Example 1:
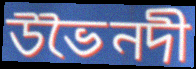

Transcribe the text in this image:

উভৈনদী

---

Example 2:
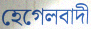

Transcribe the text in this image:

হেগেলবাদী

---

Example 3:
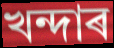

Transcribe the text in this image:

খন্দাৰ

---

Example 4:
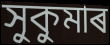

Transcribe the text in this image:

সুকুমাৰ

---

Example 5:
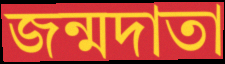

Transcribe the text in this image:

জন্মদাতা